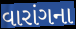
વારાંગના